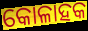
କୋଳାହକ